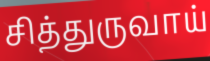
சித்துருவாய்